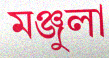
মঞ্জুলা